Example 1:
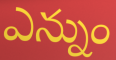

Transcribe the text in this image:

ఎన్నుం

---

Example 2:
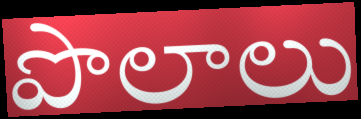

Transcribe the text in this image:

పొలాలు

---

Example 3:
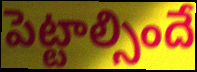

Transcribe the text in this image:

పెట్టాల్సిందే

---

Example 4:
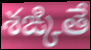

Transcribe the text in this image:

శఙ్కితే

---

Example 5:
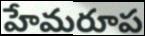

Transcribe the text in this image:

హేమరూప